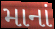
માનાં